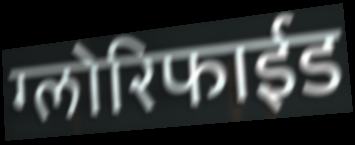
ग्लोरिफाईड